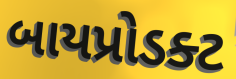
બાયપ્રોડક્ટ